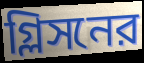
গ্লিসনের